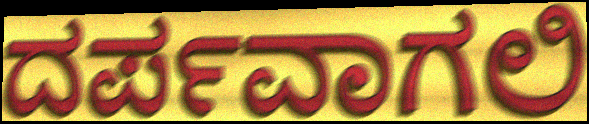
ದರ್ಪವಾಗಲಿ